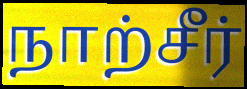
நாற்சீர்